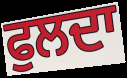
ਫੁਲਦਾ